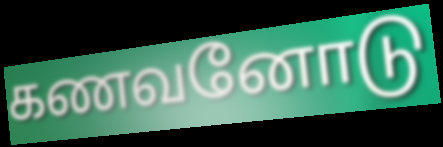
கணவனோடு